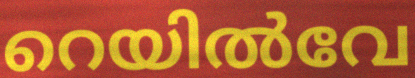
റെയിൽവേ